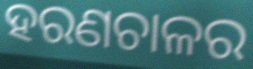
ହରଣଚାଳର